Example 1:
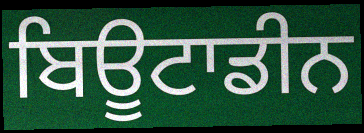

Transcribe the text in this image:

ਬਿਊਟਾਡੀਨ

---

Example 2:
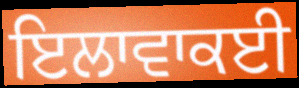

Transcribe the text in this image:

ਇਲਾਵਾਕਈ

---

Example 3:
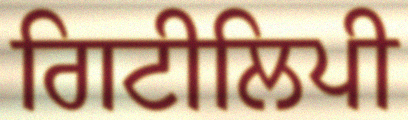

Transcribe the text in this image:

ਗਿਟੀਲਿਪੀ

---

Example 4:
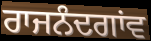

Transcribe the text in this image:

ਰਾਜਨੰਦਗਾਂਵ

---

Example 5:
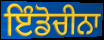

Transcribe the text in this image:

ਇੰਡੋਚੀਨਾ